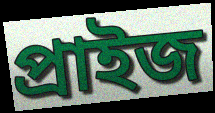
প্ৰাইজ